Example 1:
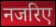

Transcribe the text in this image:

नजरिए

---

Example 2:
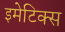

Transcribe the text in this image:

इमेटिक्स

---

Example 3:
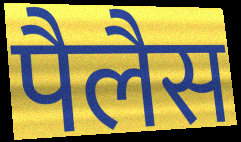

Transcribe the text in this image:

पैलैस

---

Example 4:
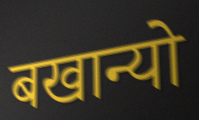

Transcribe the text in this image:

बखान्यो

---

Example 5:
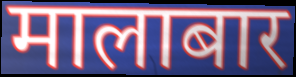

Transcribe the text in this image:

मालाबार